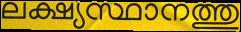
ലക്ഷ്യസ്ഥാനത്തു